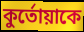
কুর্তোয়াকে